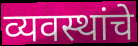
व्यवस्थांचे